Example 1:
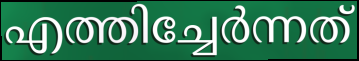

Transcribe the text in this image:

എത്തിച്ചേർന്നത്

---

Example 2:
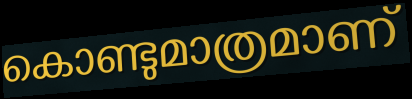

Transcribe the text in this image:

കൊണ്ടുമാത്രമാണ്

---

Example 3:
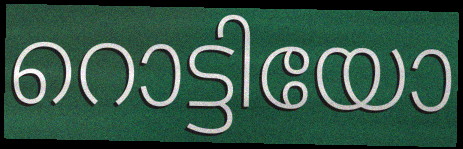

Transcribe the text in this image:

റൊട്ടിയോ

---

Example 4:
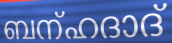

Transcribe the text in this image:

ബന്ഹദാദ്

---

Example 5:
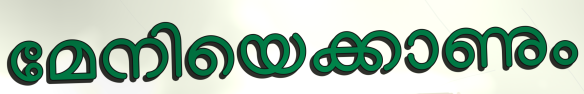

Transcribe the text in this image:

മേനിയെക്കാണും